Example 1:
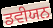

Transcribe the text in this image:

ਡਵੀਯਨ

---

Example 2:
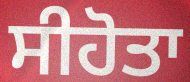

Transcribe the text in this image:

ਸੀਹੋਤਾ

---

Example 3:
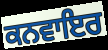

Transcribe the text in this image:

ਕਨਵਾਇਰ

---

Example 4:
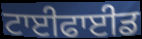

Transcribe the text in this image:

ਟਾਈਫਾਈਡ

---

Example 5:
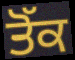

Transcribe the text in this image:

ਤੋੱਕ